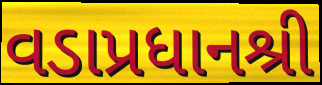
વડાપ્રધાનશ્રી